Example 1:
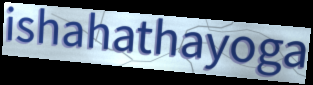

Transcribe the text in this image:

ishahathayoga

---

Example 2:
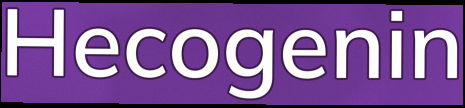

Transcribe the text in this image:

Hecogenin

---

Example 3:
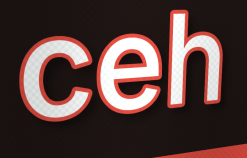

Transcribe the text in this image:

ceh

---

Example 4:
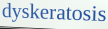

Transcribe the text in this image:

dyskeratosis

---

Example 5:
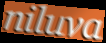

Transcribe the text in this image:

niluva